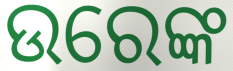
ଉରେଙ୍କ